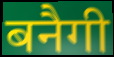
बनैगी